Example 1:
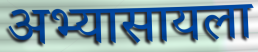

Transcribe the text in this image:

अभ्यासायला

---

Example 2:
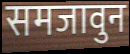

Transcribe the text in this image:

समजावुन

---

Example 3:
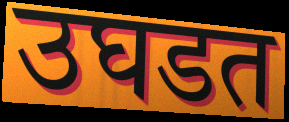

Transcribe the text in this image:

उघडत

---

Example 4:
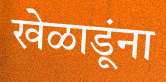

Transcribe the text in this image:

खेळाडूंना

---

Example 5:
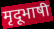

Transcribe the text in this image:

मृदूभाषी